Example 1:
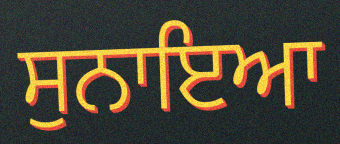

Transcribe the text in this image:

ਸੁਨਾਇਆ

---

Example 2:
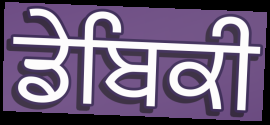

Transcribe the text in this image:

ਡੇਬਿਕੀ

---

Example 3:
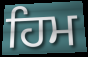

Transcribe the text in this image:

ਹਿਮ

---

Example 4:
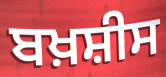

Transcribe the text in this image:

ਬਖ਼ਸ਼ੀਸ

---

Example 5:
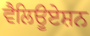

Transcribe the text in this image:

ਵੈਲਿਊਏਸ਼ਨ